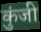
कुंजी